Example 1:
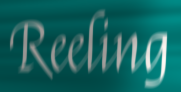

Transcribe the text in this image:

Reeling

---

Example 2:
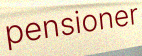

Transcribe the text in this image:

pensioner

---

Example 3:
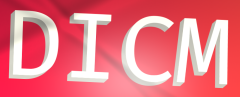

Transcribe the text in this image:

DICM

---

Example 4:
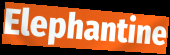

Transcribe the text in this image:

Elephantine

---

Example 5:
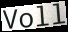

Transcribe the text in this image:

Voll